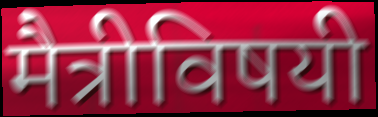
मैत्रीविषयी